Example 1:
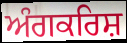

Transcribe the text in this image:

ਅੰਗਕਰਿਸ਼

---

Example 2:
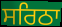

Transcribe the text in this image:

ਸਰਿਠਾ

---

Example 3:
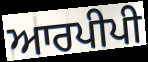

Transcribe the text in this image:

ਆਰਪੀਪੀ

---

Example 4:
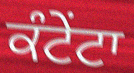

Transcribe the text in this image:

ਕੰਟੇਂਟਾ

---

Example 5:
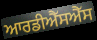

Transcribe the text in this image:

ਆਰਡੀਐੱਸਐੱਸ